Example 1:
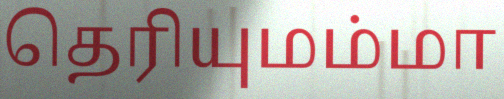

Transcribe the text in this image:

தெரியுமம்மா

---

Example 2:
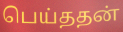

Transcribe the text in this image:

பெய்ததன்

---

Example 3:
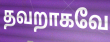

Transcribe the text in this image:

தவறாகவே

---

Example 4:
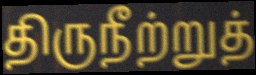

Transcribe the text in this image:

திருநீற்றுத்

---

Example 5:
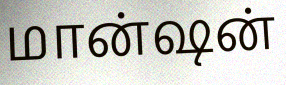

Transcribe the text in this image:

மான்ஷன்